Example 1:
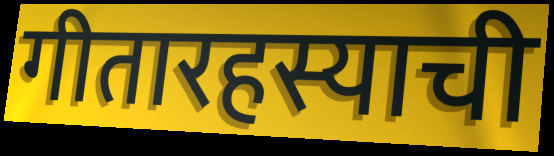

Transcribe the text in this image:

गीतारहस्याची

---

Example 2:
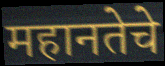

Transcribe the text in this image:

महानतेचे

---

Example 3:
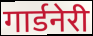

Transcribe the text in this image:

गार्डनेरी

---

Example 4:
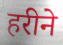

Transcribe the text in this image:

हरीने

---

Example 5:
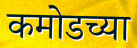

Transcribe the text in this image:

कमोडच्या